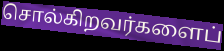
சொல்கிறவர்களைப்